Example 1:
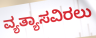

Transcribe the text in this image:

ವ್ಯತ್ಯಾಸವಿರಲು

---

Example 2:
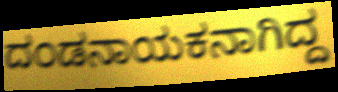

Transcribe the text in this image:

ದಂಡನಾಯಕನಾಗಿದ್ದ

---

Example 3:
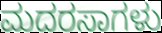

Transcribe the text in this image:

ಮದರಸಾಗಳು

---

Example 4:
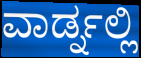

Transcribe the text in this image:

ವಾರ್ಡ್ನಲ್ಲಿ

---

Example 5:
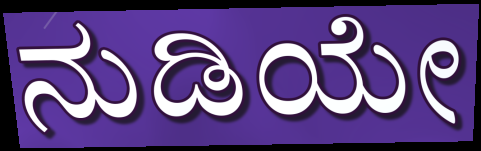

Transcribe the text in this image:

ನುಡಿಯೇ